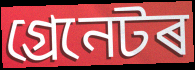
গ্ৰেনেটৰ